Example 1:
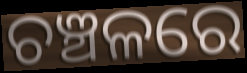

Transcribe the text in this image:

ଚଞ୍ଚଳରେ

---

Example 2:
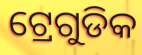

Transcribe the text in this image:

ଟ୍ରେଗୁଡିକ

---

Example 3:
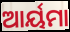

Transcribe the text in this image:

ଆର୍ୟମା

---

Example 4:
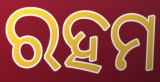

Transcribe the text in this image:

ରହମ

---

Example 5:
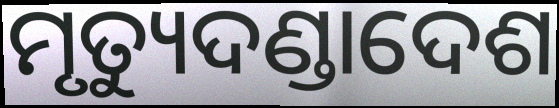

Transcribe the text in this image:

ମୃତ୍ୟୁଦଣ୍ଡାଦେଶ